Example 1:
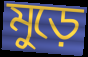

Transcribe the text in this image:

মুড়ে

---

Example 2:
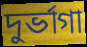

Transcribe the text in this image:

দুর্ভাগা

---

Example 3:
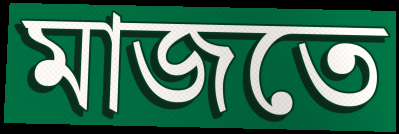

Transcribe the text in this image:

মাজতে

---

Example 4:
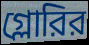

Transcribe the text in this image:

গ্লোরির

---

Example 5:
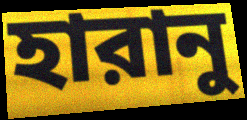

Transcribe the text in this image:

হারানু